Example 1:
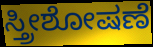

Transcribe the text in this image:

ಸ್ತ್ರೀಶೋಷಣೆ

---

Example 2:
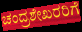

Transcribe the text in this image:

ಚಂದ್ರಶೇಖರರಿಗೆ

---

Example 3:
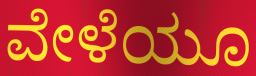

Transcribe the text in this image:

ವೇಳೆಯೂ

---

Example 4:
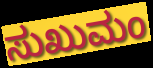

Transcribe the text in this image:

ಸುಖುಮಂ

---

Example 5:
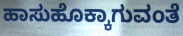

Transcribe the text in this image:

ಹಾಸುಹೊಕ್ಕಾಗುವಂತೆ